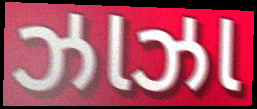
ઝાઝા